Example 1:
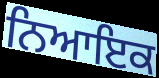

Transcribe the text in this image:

ਨਿਆਇਕ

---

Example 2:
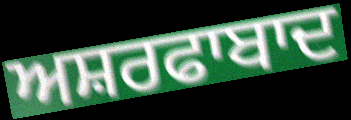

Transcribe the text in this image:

ਅਸ਼ਰਫਾਬਾਦ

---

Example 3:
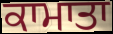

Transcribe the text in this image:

ਕਾਮਾਤਾ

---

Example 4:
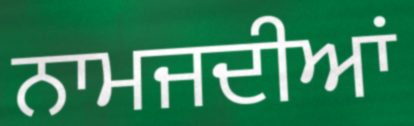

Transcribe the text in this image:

ਨਾਮਜਦੀਆਂ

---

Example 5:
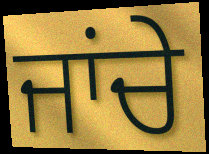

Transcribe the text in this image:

ਜਾਂਚੇ